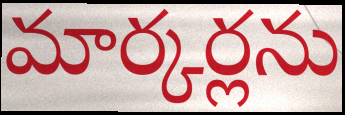
మార్కర్లను